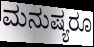
ಮನುಷ್ಯರೂ